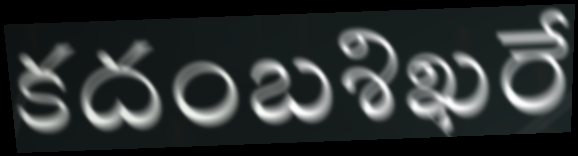
కదంబశిఖరే